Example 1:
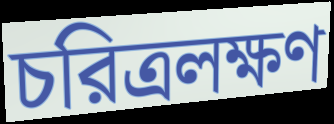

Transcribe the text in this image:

চরিত্রলক্ষণ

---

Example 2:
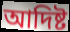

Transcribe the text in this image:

আদিষ্ট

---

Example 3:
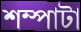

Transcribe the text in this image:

শম্পাটা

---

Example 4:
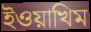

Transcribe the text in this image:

ইওয়াখিম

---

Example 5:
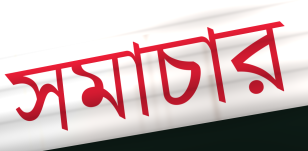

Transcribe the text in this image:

সমাচার